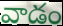
వాడం